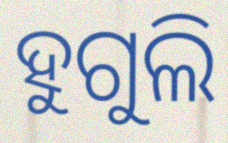
ହୁଗୁଲି